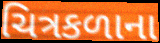
ચિત્રકળાના